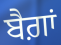
ਬੈਗ਼ਾਂ